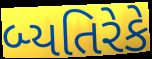
બ્યતિરેકે